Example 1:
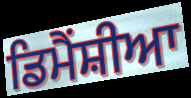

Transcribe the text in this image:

ਡਿਮੈਂਸ਼ੀਆ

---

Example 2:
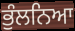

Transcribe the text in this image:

ਭੁੰਲਨਿਆ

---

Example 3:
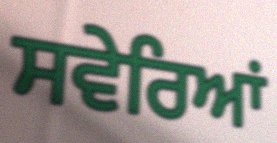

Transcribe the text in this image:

ਸਵੇਰਿਆਂ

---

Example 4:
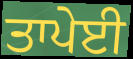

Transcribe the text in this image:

ਤਾਪੇਈ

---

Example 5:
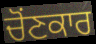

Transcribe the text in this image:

ਚੋਂਣਕਾਰ